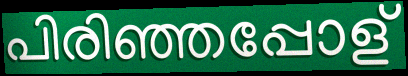
പിരിഞ്ഞപ്പോള്